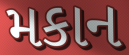
મકાન